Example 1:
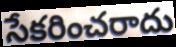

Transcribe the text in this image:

సేకరించరాదు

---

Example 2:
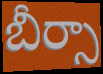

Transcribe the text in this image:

బీర్సా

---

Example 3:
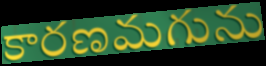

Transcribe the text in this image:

కారణమగును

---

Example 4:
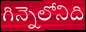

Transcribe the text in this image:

గిన్నెలోనిది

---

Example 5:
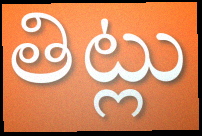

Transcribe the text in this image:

తిట్లు